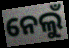
ନେଲୁଁ